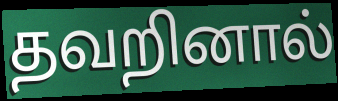
தவறினால்